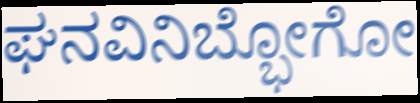
ಘನವಿನಿಬ್ಭೋಗೋ